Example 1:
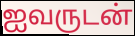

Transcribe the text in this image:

ஐவருடன்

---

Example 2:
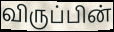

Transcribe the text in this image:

விருப்பின்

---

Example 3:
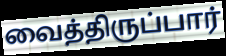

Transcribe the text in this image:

வைத்திருப்பார்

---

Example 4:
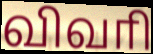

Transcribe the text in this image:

விவரி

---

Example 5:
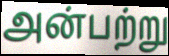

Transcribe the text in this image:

அன்பற்று